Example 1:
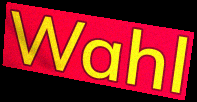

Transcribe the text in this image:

Wahl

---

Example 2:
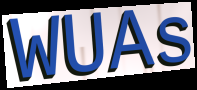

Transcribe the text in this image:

WUAs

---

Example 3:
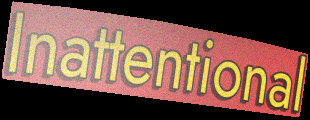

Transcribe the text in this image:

Inattentional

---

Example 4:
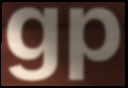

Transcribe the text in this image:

gp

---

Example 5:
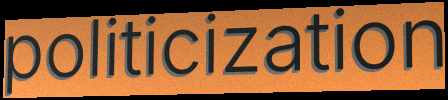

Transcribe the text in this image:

politicization